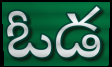
ఓడ